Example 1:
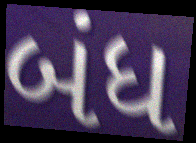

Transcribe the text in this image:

બંધ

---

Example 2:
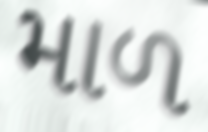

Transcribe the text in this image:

માળ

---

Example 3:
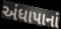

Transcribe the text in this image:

અંધાપાનાં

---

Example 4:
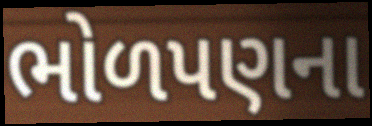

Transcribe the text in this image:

ભોળપણના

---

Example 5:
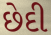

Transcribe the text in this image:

છેદી